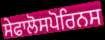
ਸੇਫਾਲੋਸਪੋਰਿਨਸ